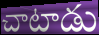
చాటాడు